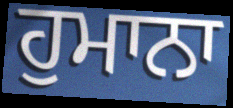
ਹੁਮਾਨਾ